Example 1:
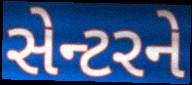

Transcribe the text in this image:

સેન્ટરને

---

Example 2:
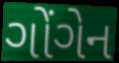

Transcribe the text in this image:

ગોંગેન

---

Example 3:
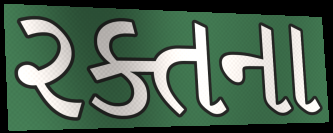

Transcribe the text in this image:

રક્તના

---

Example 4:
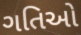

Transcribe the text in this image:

ગતિઓ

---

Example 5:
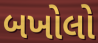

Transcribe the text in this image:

બખોલો